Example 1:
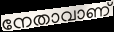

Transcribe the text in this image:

നേതാവാണ്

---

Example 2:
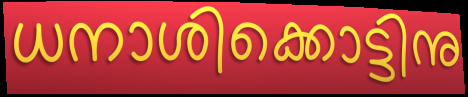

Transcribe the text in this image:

ധനാശിക്കൊട്ടിനു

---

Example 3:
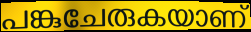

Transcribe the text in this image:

പങ്കുചേരുകയാണ്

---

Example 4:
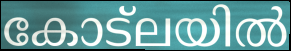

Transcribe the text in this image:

കോട്ലയിൽ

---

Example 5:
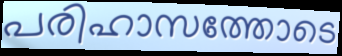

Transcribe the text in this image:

പരിഹാസത്തോടെ